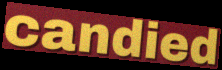
candied